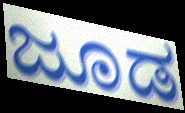
ಜೂಡ